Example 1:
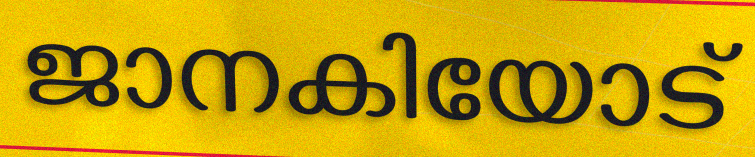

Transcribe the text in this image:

ജാനകിയോട്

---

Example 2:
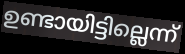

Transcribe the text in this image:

ഉണ്ടായിട്ടില്ലെന്ന്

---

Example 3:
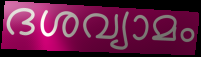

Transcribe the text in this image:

ദശവ്യാമം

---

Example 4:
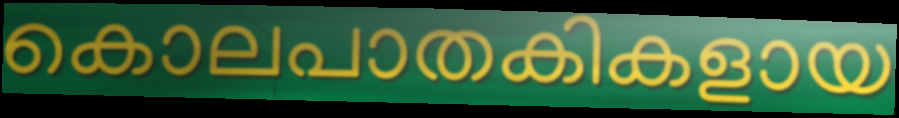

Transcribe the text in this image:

കൊലപാതകികളായ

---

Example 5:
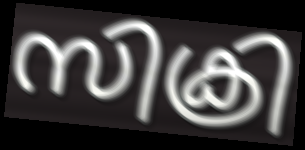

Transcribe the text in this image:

സിക്രി